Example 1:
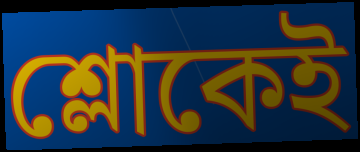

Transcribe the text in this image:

শ্লোকেই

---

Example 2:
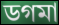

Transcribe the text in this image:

ডগমা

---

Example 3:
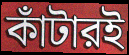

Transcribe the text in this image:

কাঁটারই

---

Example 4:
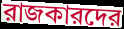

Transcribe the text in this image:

রাজকারদের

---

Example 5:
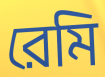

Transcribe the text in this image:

রেমি